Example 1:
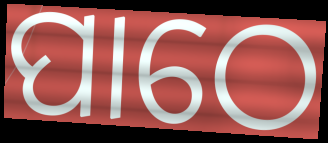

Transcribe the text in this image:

ପାଠେ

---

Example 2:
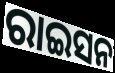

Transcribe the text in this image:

ରାଇସନ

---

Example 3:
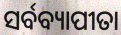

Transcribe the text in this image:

ସର୍ବବ୍ୟାପୀତା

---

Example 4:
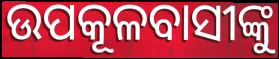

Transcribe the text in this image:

ଉପକୂଳବାସୀଙ୍କୁ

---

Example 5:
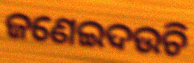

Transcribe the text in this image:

ଜଣେଇଦଉଚି